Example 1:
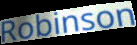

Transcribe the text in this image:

Robinson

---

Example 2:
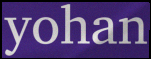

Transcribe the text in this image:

yohan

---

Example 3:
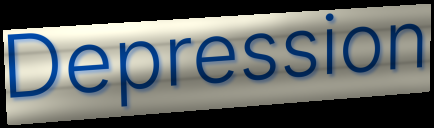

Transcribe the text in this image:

Depression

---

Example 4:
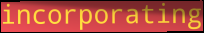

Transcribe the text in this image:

incorporating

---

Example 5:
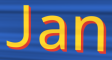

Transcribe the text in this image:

Jan